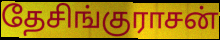
தேசிங்குராசன்